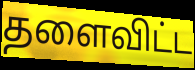
தளைவிட்ட